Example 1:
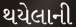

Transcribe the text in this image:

થયેલાની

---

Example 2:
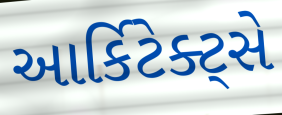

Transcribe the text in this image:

આર્કિટેક્ટ્સે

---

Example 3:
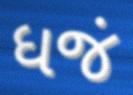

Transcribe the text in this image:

ધજં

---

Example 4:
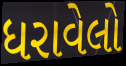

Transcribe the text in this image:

ધરાવેલો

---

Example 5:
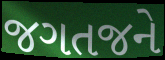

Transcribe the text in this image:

જગતજને